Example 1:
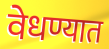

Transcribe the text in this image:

वेधण्यात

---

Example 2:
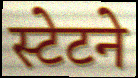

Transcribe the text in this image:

स्टेटने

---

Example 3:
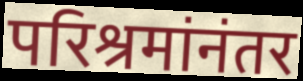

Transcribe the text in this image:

परिश्रमांनंतर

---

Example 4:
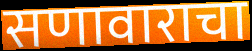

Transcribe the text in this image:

सणावाराचा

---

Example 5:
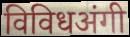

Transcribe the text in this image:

विविधअंगी